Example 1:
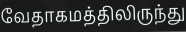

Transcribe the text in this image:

வேதாகமத்திலிருந்து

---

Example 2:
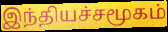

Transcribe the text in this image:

இந்தியச்சமூகம்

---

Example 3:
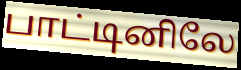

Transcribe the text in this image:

பாட்டினிலே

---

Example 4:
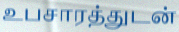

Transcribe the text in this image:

உபசாரத்துடன்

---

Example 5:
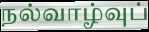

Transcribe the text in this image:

நல்வாழ்வுப்